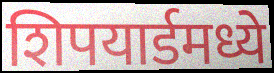
शिपयार्डमध्ये